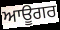
ਆਊਗਰ